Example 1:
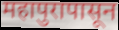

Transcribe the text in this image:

महापुरापासून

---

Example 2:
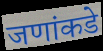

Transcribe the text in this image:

जणांकडे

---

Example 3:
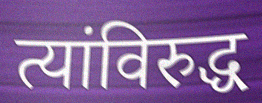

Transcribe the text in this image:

त्यांविरुद्ध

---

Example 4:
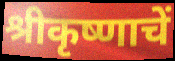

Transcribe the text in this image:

श्रीकृष्णाचें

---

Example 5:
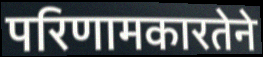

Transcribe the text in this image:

परिणामकारतेने